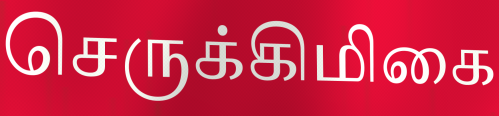
செருக்கிமிகை